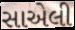
સાએલી